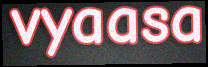
vyaasa